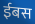
ईबस